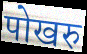
पोखरु